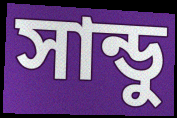
সান্ডু